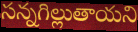
సన్నగిల్లుతాయని